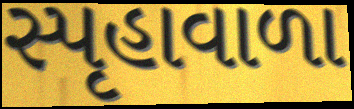
સ્પૃહાવાળા